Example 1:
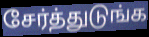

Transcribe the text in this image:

சேர்த்துடுங்க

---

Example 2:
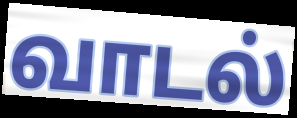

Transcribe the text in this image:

வாடல்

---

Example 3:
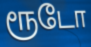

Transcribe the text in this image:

ரூடோ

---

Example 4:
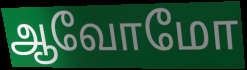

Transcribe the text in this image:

ஆவோமோ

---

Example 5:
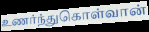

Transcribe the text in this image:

உணர்ந்துகொள்வான்